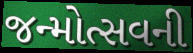
જન્મોત્સવની